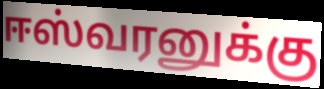
ஈஸ்வரனுக்கு